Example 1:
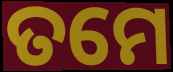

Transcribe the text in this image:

ତମେ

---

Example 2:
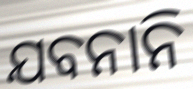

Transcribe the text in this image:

ଯବନାନି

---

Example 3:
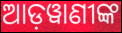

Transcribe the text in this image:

ଆଡ଼ୱାଣୀଙ୍କ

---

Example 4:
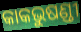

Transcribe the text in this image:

କାକଭୁଷଣ୍ଡୀ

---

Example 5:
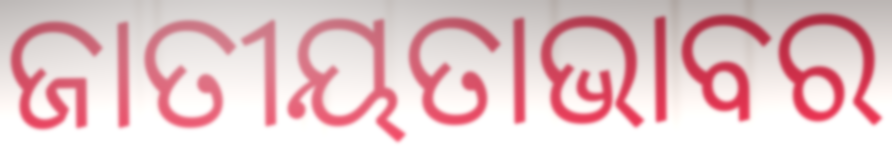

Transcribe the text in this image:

ଜାତୀୟତାଭାବର